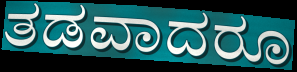
ತಡವಾದರೂ